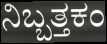
ನಿಬ್ಬತ್ತಕಂ